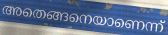
അതെങ്ങനെയാണെന്ന്